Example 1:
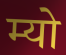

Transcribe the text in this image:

म्यो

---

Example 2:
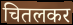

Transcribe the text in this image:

चितलकर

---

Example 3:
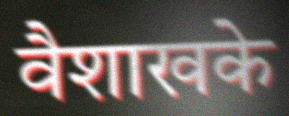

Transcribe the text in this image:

वैशाखके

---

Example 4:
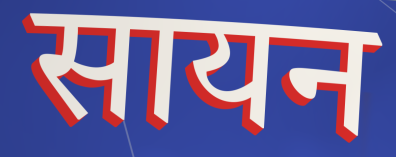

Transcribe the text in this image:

सायन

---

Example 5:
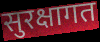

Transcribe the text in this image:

सुरक्षागत